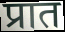
प्रात